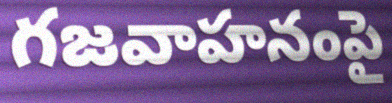
గజవాహనంపై